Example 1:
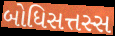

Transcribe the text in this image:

બોધિસત્તસ્સ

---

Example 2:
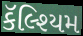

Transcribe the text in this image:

કૅલ્શ્યિમ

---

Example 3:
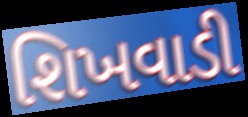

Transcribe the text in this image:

શિખવાડી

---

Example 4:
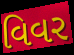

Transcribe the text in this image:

વિવર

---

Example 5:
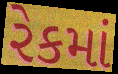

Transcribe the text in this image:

રેકમાં